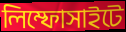
লিম্ফোসাইটে